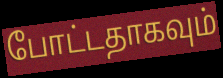
போட்டதாகவும்